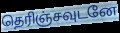
தெரிஞ்சவுடனே